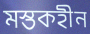
মস্তকহীন